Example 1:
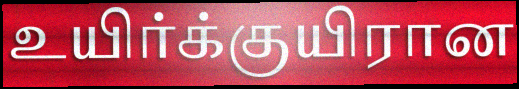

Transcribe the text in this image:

உயிர்க்குயிரான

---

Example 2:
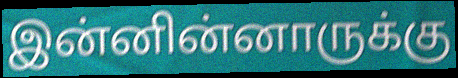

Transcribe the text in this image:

இன்னின்னாருக்கு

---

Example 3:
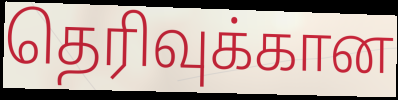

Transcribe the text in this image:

தெரிவுக்கான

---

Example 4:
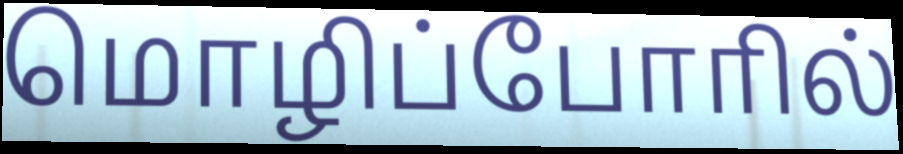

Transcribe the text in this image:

மொழிப்போரில்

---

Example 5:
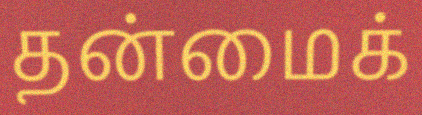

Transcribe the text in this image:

தன்மைக்